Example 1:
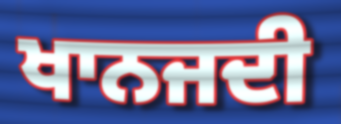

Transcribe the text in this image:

ਖਾਨਜਦੀ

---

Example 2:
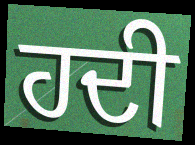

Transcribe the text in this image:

ਹਦੀ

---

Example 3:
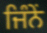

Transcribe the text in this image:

ਜਿੰਨੇਂ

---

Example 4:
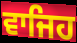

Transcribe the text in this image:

ਵਾਜਿਹ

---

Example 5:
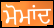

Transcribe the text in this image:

ਮੋਮਾਂਦ